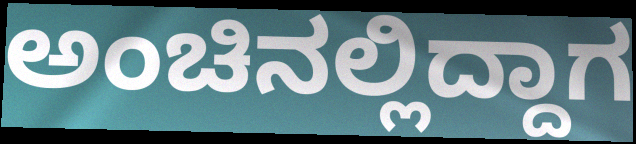
ಅಂಚಿನಲ್ಲಿದ್ದಾಗ